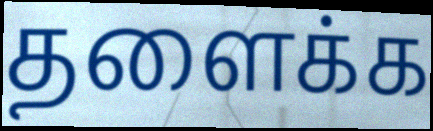
தளைக்க